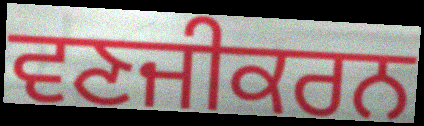
ਵਣਜੀਕਰਨ